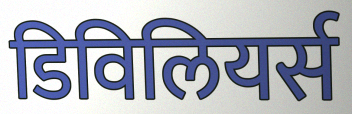
डिविलियर्स